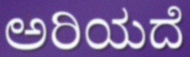
ಅರಿಯದೆ